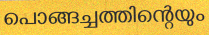
പൊങ്ങച്ചത്തിന്റെയും